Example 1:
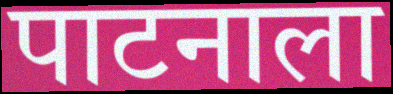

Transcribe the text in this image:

पाटनाला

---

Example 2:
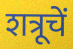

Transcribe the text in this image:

शत्रूचें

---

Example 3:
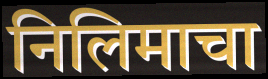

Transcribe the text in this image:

निलिमाचा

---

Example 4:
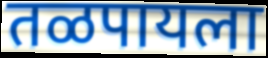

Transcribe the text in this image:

तळपायला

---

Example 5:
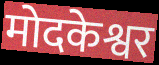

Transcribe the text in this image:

मोदकेश्वर